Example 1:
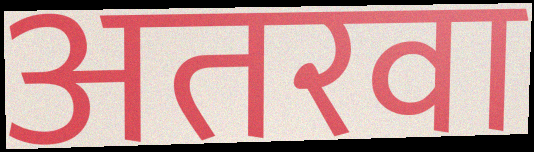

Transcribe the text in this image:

अतरवा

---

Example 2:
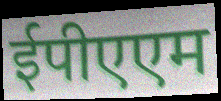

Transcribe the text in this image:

ईपीएएम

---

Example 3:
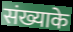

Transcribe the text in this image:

संख्याके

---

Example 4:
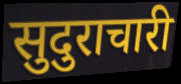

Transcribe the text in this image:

सुदुराचारी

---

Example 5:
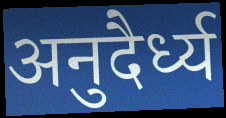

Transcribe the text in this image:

अनुदैर्ध्य